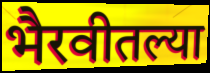
भैरवीतल्या